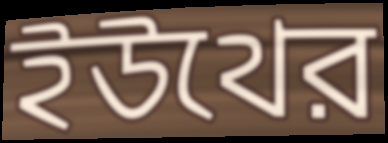
ইউথের